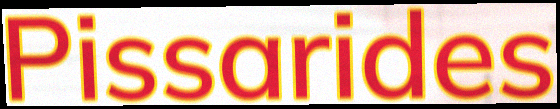
Pissarides